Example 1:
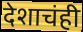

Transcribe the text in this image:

देशाचंही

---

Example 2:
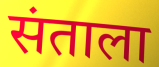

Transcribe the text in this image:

संताला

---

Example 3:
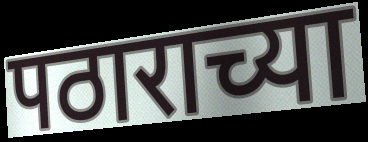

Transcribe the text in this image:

पठाराच्या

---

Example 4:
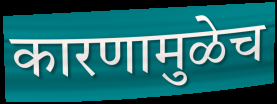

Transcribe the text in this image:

कारणामुळेच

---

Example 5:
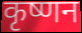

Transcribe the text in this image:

कृष्णन